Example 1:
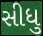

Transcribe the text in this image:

સીધુ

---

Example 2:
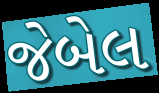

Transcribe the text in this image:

જેબેલ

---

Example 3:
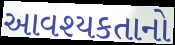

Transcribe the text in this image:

આવશ્યકતાનો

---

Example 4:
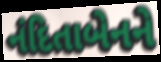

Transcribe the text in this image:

નંદિતાબેનને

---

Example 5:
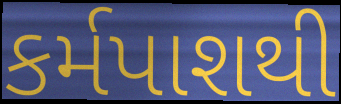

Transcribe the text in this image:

કર્મપાશથી